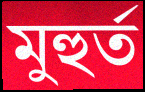
মুহুৰ্ত